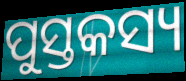
ପୁସ୍ତକସ୍ୟ